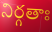
నిర్గతాః